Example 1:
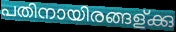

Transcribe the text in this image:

പതിനായിരങ്ങള്ക്കു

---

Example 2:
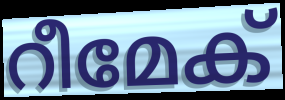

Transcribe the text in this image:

റീമേക്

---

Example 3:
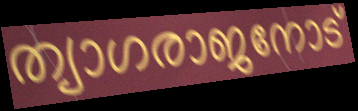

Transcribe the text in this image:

ത്യാഗരാജനോട്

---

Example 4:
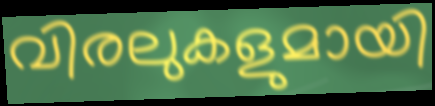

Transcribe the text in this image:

വിരലുകളുമായി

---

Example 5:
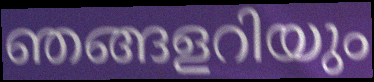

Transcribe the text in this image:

ഞങ്ങളറിയും